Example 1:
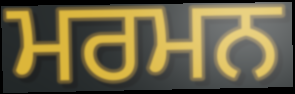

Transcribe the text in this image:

ਮਰਮਨ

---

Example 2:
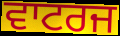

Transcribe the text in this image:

ਵਾਟਰਜ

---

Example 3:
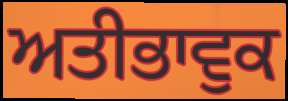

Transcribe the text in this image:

ਅਤੀਭਾਵੁਕ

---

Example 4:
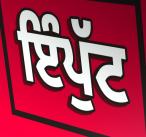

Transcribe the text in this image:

ਇੰਪੁੱਟ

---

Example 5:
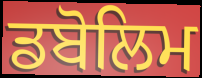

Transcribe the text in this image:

ਡਬੋਲਿਮ